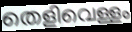
തെളിവെള്ളം